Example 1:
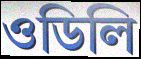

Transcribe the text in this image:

ওডিলি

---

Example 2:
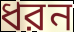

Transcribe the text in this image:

ধরন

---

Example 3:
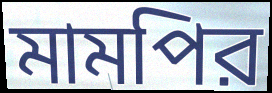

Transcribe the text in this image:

মামপির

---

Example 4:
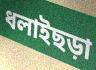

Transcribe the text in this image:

ধলাইছড়া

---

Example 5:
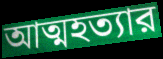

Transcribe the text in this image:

আত্মহত্যার